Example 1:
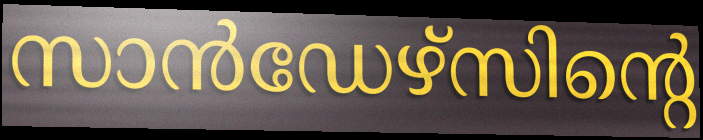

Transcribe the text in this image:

സാൻഡേഴ്സിന്റെ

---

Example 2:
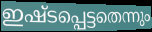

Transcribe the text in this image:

ഇഷ്ടപ്പെട്ടതെന്നും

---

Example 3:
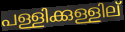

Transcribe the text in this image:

പള്ളിക്കുള്ളില്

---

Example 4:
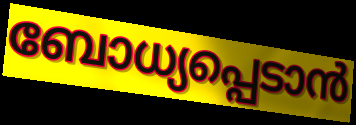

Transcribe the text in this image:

ബോധ്യപ്പെടാൻ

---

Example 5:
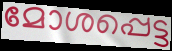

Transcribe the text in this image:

മോശപ്പെട്ട